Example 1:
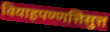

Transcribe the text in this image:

वियाहपण्णत्तिसुत्त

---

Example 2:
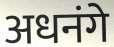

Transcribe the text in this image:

अधनंगे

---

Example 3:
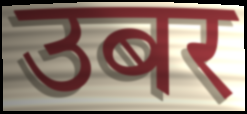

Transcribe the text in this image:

उबर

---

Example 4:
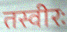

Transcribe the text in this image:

तस्वीरः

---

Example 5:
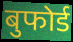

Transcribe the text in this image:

बुफोर्ड